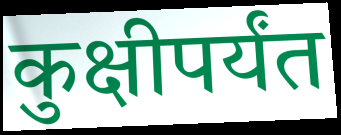
कुक्षीपर्यंत